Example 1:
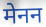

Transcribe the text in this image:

मेनन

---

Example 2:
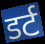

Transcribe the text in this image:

डर्ट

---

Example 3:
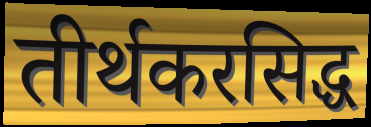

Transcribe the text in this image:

तीर्थकरसिद्ध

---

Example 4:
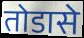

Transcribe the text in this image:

तोडासे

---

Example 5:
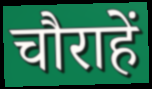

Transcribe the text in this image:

चौराहें